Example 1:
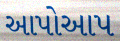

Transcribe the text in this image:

આપોઆપ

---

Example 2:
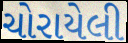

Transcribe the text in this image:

ચોરાયેલી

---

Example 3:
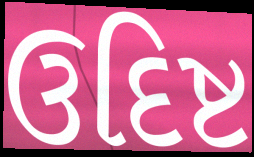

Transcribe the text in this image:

ઉદિષ્ટ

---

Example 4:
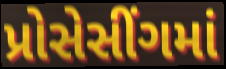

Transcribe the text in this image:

પ્રોસેસીંગમાં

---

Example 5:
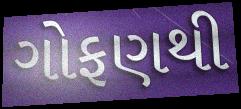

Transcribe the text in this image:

ગોફણથી